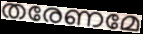
തരേണമേ